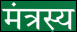
मंत्रस्य